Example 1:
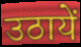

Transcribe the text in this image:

उठायें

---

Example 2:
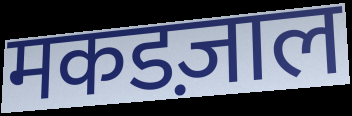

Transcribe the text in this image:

मकडज़ाल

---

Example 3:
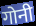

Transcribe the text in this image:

गोनी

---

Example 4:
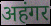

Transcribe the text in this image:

अहंगर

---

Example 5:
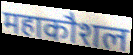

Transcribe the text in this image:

महाकौशल